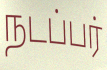
நடப்பர்